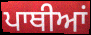
ਪਾਥੀਆਂ